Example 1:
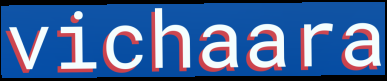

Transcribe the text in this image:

vichaara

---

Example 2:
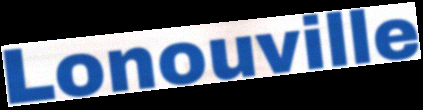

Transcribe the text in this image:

Lonouville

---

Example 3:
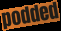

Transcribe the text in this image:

podded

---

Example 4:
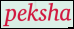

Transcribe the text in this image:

peksha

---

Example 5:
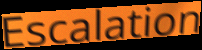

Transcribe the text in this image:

Escalation